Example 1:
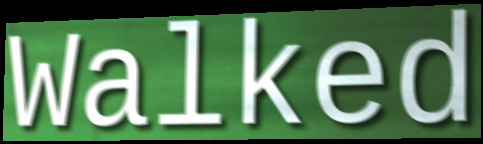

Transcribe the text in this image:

Walked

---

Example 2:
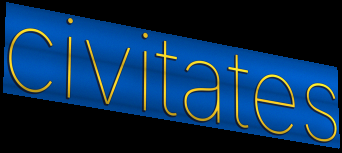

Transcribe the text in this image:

civitates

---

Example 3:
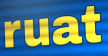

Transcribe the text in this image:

ruat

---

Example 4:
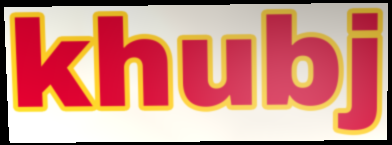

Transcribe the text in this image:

khubj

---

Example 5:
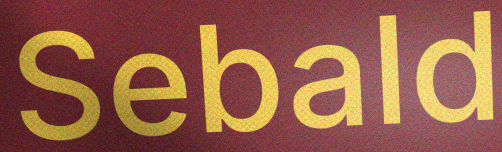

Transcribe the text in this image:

Sebald